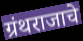
ग्रंथराजाचे